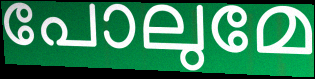
പോലുമേ